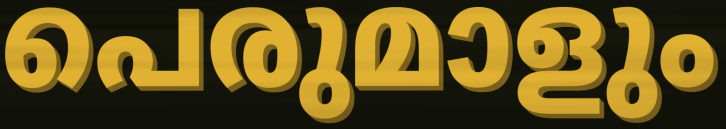
പെരുമാളും